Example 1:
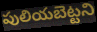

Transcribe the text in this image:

పులియబెట్టని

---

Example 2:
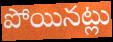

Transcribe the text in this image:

పోయినట్లు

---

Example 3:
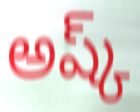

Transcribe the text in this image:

అష్క్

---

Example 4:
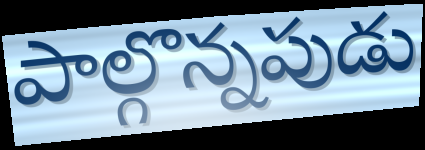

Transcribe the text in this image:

పాల్గొన్నపుడు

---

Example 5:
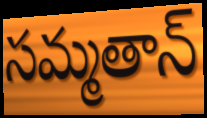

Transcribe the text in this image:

సమ్మతాన్